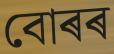
বোৰৰ